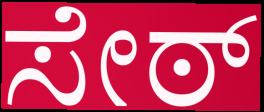
ಸೇಠ್